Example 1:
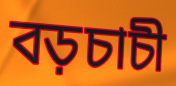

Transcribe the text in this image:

বড়চাচী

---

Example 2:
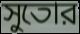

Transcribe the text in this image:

সুতোর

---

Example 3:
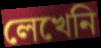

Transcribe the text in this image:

লেখেনি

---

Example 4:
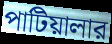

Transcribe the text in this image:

পাটিয়ালার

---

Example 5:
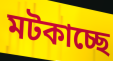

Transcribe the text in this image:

মটকাচ্ছে